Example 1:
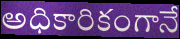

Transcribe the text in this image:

అధికారికంగానే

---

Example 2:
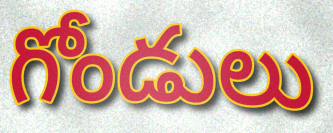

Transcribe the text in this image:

గోండులు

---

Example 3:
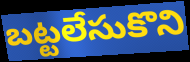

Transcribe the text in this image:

బట్టలేసుకొని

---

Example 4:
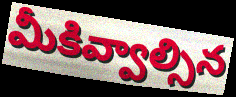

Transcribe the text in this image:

మీకివ్వాల్సిన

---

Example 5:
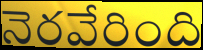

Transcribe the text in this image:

నెరవేరింది